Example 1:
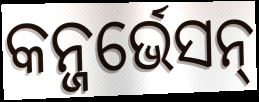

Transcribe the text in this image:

କନ୍ଜର୍ଭେସନ୍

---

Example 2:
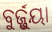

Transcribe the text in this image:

ବୁର୍ଜ୍ଜୁୟା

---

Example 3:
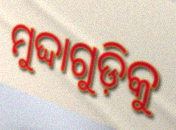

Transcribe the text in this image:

ମୁଦ୍ଦାଗୁଡ଼ିକୁ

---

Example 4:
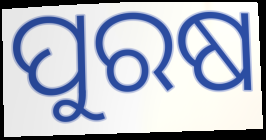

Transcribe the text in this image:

ପୁରଷ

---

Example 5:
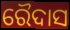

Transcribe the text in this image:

ରୈଦାସ